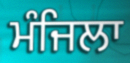
ਮੰਜਿਲਾ